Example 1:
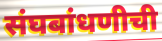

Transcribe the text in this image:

संघबांधणीची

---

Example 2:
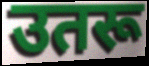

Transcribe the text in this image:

उतरू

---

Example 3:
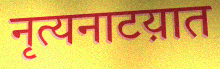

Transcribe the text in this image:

नृत्यनाटय़ात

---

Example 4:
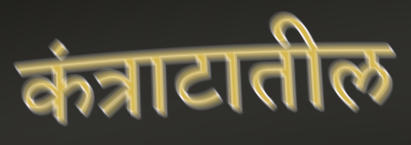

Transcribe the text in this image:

कंत्राटातील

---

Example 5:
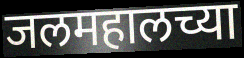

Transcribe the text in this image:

जलमहालच्या